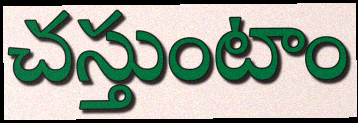
చస్తుంటాం